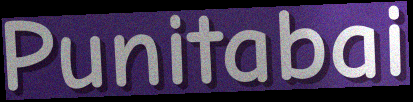
Punitabai